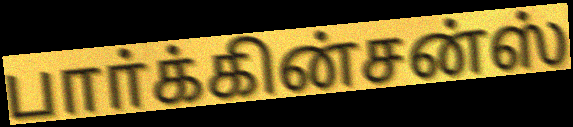
பார்க்கின்சன்ஸ்